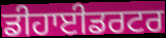
ਡੀਹਾਈਡਰਟਰ